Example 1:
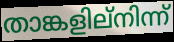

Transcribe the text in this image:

താങ്കളില്നിന്ന്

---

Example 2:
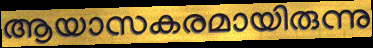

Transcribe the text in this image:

ആയാസകരമായിരുന്നു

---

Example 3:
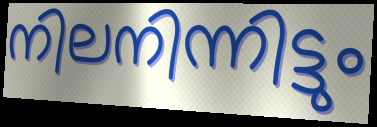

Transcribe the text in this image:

നിലനിന്നിട്ടും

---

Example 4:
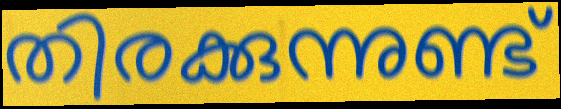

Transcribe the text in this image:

തിരക്കുന്നുണ്ട്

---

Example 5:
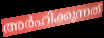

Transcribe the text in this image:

അർഹിക്കുന്നത്